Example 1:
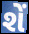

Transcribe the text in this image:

શેં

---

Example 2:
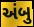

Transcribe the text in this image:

અંબુ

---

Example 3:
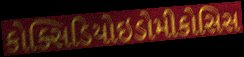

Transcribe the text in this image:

કોક્સિડિયોઇડોમીકોસિસ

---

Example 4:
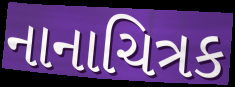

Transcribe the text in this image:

નાનાચિત્રક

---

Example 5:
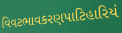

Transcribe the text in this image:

વિવટભાવકરણપાટિહારિયં